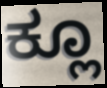
ಕ್ಲೂ